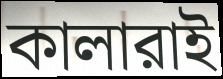
কালারাই